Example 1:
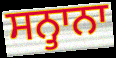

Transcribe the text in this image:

ਸਨ੍ਤਾਨਾ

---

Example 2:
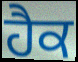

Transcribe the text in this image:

ਹੈਕ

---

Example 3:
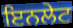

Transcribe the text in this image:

ਇਨਲੇਟ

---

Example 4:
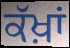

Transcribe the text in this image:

ਕੱਖ਼ਾਂ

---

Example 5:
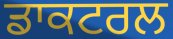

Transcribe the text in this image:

ਡਾਕਟਰਲ